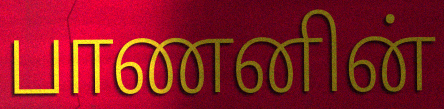
பாணனின்